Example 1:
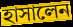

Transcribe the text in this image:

হাসালেন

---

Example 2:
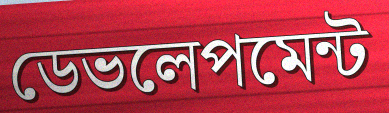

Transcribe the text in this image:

ডেভলেপমেন্ট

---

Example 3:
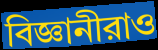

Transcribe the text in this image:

বিজ্ঞানীরাও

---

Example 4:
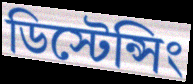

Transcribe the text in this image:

ডিস্টেন্সিং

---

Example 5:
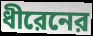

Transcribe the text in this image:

ধীরেনের